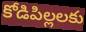
కోడిపిల్లలకు